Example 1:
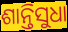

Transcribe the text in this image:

ଶାନ୍ତିସୁଧା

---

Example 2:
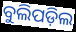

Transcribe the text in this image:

ବୁଲିପଡ଼ିଲ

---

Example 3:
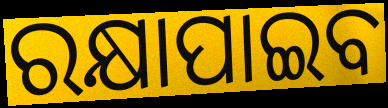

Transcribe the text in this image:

ରକ୍ଷାପାଇବ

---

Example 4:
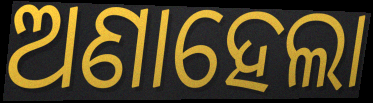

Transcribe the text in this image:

ଅଣାହେଲା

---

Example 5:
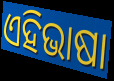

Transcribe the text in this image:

ଏହିଭାଷା